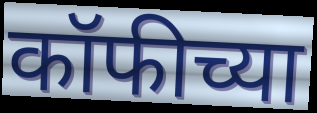
कॉफीच्या